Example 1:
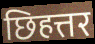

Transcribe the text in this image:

छिहत्तर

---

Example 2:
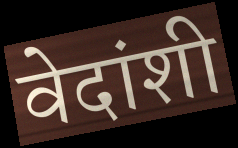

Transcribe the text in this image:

वेदांशी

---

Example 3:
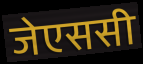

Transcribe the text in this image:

जेएससी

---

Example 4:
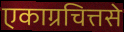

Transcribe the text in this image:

एकाग्रचित्तसे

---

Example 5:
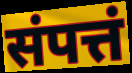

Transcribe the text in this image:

संपत्तं